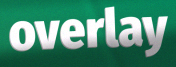
overlay